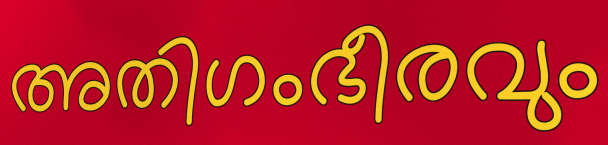
അതിഗംഭീരവും